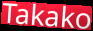
Takako